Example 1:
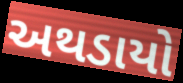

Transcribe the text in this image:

અથડાયો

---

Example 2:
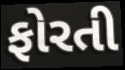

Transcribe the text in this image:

ફોરતી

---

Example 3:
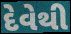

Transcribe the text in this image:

દેવેથી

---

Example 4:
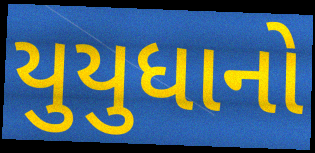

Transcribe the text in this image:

યુયુધાનો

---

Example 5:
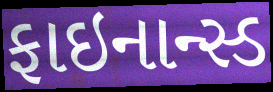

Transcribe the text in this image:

ફાઇનાન્સ્ડ